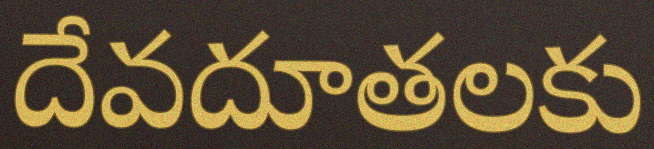
దేవదూతలకు